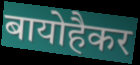
बायोहैकर